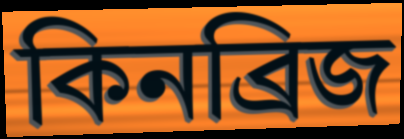
কিনব্রিজ